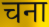
चना